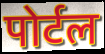
पोर्टल